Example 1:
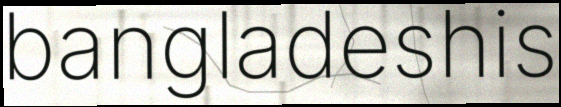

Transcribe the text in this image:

bangladeshis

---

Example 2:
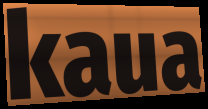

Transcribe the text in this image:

kaua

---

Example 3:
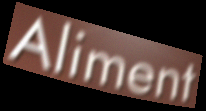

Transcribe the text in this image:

Aliment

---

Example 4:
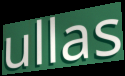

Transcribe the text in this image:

ullas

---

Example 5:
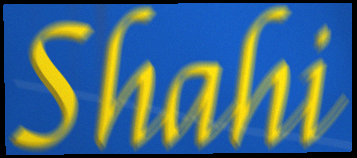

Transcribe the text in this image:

Shahi